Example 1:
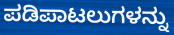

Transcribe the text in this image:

ಪಡಿಪಾಟಲುಗಳನ್ನು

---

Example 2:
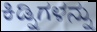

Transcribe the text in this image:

ಕಿಡ್ನಿಗಳನ್ನು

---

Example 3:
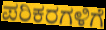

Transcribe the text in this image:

ಪರಿಕರಗಳಿಗೆ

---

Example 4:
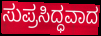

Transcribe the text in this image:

ಸುಪ್ರಸಿದ್ಧವಾದ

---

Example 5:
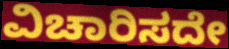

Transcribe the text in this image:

ವಿಚಾರಿಸದೇ